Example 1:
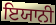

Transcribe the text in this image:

ਇਯਾਨੀ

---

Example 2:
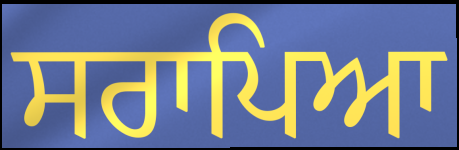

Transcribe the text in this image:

ਸਰਾਪਿਆ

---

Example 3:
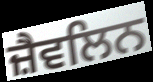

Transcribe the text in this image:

ਜ਼ੈਵਲਿਨ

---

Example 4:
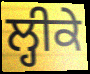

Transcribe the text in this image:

ਲ੍ਹੀਕੇ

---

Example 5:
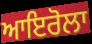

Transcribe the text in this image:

ਆਇਰੋਲਾ